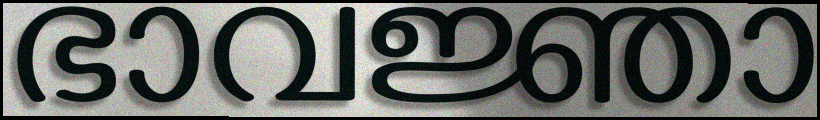
ഭാവജ്ഞാ